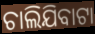
ଚାଲିଯିବାଟା